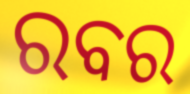
ରବର